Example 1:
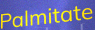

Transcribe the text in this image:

Palmitate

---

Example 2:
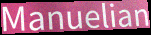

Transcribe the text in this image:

Manuelian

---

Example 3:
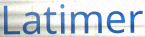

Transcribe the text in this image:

Latimer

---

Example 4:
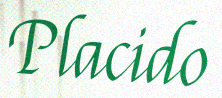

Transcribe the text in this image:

Placido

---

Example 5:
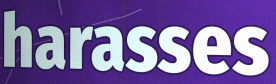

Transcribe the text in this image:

harasses